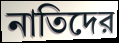
নাতিদের